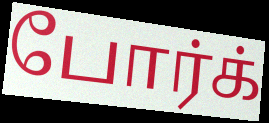
போர்க்